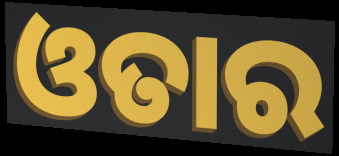
ଓତାର